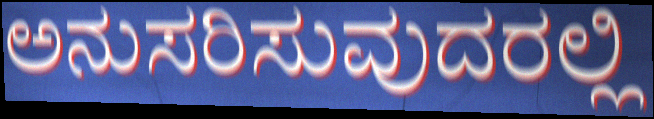
ಅನುಸರಿಸುವುದರಲ್ಲಿ